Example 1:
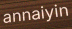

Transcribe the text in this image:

annaiyin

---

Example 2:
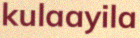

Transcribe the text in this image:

kulaayila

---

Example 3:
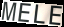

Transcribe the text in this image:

MELE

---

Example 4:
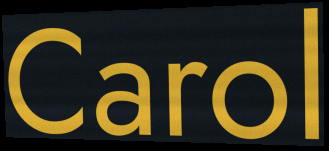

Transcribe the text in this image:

Carol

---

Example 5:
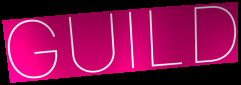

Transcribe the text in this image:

GUILD